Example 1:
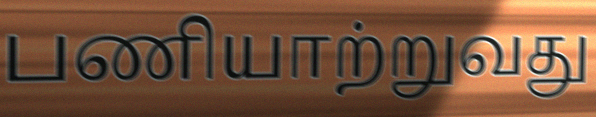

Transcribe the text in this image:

பணியாற்றுவது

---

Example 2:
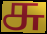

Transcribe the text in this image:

சு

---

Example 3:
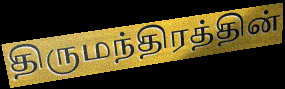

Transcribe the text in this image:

திருமந்திரத்தின்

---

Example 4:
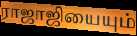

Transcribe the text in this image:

ராஜாஜியையும்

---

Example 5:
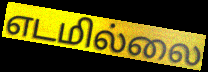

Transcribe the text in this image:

எடமில்லை